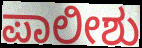
ಪಾಲೀಶು